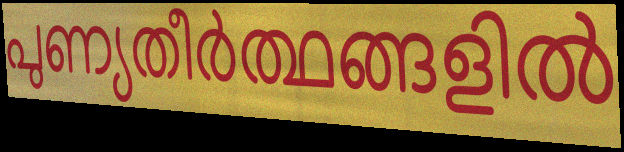
പുണ്യതീർത്ഥങ്ങളിൽ